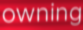
owning